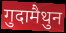
गुदामैथुन